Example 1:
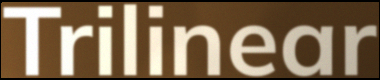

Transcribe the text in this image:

Trilinear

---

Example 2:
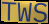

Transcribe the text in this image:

TWS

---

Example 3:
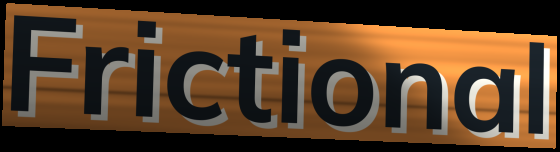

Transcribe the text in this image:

Frictional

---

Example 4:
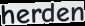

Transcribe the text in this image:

herden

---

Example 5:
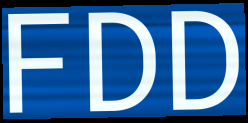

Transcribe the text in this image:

FDD